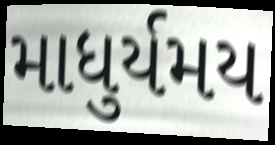
માધુર્યમય